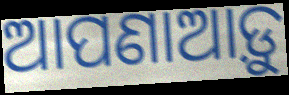
ଆପଣାଆଡ଼ୁ